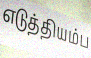
எடுத்தியம்ப